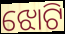
ଝୋଟି